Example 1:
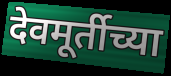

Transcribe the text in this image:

देवमूर्तीच्या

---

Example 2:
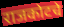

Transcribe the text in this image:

राजकोटचे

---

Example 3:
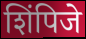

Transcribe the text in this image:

शिंपिजे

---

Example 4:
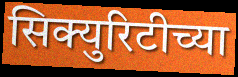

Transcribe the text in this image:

सिक्युरिटीच्या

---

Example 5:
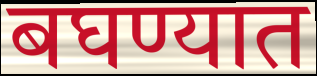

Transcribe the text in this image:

बघण्यात